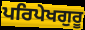
ਪਰਿਪੇਖਗੁਰੂ